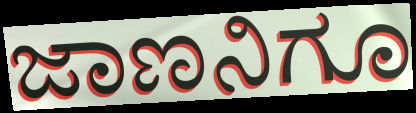
ಜಾಣನಿಗೂ